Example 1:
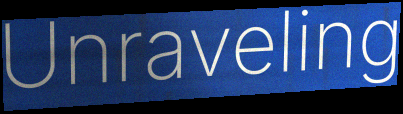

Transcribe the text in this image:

Unraveling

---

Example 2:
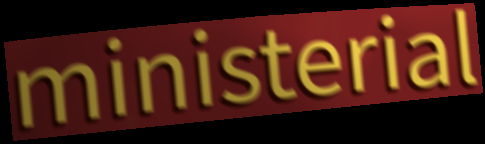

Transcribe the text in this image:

ministerial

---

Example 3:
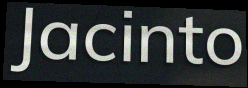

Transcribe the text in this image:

Jacinto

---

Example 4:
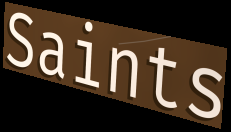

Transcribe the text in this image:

Saints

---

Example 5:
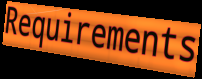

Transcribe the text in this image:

Requirements